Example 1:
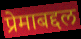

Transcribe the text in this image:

प्रेमाबद्दल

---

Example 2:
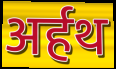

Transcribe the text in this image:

अर्हथ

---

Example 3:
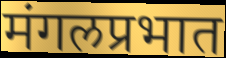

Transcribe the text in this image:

मंगलप्रभात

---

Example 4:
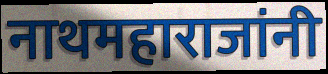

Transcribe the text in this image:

नाथमहाराजांनी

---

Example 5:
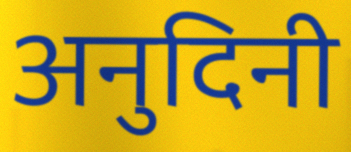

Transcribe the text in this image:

अनुदिनी